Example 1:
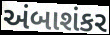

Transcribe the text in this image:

અંબાશંકર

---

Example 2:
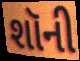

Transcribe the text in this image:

શૉની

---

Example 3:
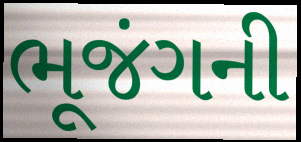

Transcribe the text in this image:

ભૂજંગની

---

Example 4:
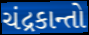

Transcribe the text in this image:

ચંદ્રકાન્તો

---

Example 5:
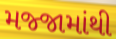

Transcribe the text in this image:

મજ્જામાંથી